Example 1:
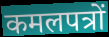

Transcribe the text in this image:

कमलपत्रों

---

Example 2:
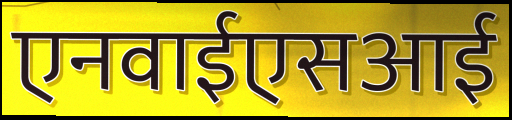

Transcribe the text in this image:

एनवाईएसआई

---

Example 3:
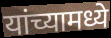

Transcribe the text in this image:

यांच्यामध्ये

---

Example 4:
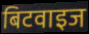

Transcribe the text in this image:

बिटवाइज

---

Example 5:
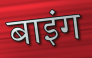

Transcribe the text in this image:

बाइंग